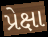
પ્રેક્ષા